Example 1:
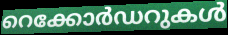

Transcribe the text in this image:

റെക്കോർഡറുകൾ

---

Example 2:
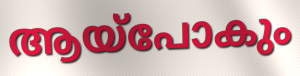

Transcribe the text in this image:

ആയ്പോകും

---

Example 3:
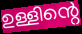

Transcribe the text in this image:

ഉള്ളിന്റെ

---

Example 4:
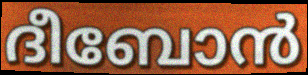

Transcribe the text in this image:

ദീബോൻ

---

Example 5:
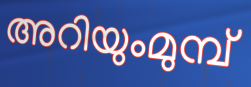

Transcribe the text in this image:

അറിയുംമുമ്പ്